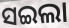
ସଇଲା